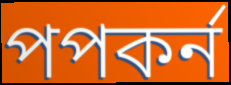
পপকর্ন